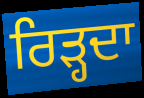
ਰਿੜ੍ਹਦਾ